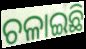
ଚଳାଇଛି